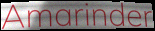
Amarinder